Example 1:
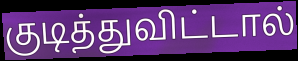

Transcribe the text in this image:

குடித்துவிட்டால்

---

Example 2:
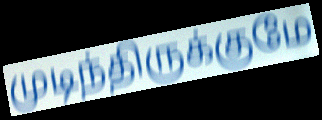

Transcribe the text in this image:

முடிந்திருக்குமே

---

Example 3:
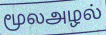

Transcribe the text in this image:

மூலஅழல்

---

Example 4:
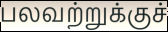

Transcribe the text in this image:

பலவற்றுக்குச்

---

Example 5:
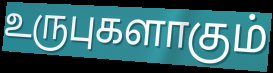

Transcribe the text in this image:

உருபுகளாகும்